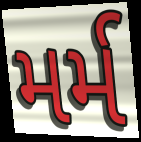
મર્મ